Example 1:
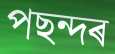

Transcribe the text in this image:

পছন্দৰ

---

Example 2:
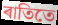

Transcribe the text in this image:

ৰাতিতে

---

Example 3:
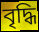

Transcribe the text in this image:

বৃদ্ধি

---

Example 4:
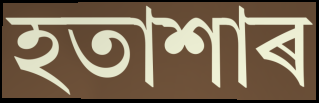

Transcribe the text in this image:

হতাশাৰ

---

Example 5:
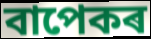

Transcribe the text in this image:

বাপেকৰ